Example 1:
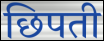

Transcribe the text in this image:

छिपती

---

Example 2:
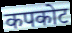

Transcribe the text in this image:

कपकोट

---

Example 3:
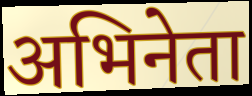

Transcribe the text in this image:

अभिनेता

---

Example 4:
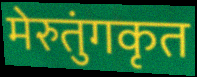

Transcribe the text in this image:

मेरुतुंगकृत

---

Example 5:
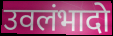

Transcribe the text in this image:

उवलंभादो